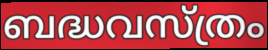
ബദ്ധവസ്ത്രം